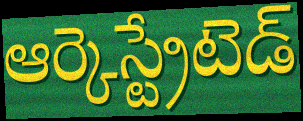
ఆర్కెస్ట్రేటెడ్